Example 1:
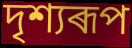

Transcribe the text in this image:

দৃশ্যৰূপ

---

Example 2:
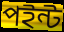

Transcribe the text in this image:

পইন্ট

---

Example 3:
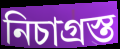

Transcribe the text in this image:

নিচাগ্ৰস্ত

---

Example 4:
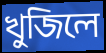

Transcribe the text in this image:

খুজিলে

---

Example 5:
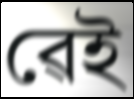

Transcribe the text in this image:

ৱেই